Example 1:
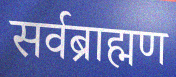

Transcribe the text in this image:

सर्वब्राह्मण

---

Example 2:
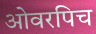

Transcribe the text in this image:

ओवरपिच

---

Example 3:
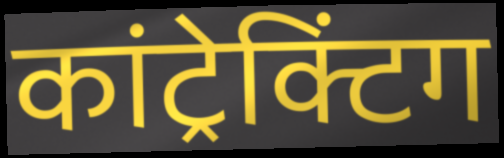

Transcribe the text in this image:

कांट्रेक्टिंग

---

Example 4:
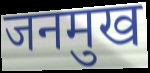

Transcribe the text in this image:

जनमुख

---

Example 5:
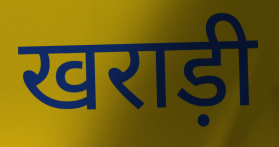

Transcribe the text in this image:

खराड़ी